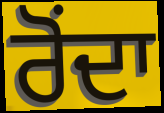
ਰੋਂਦਾ